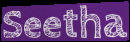
Seetha